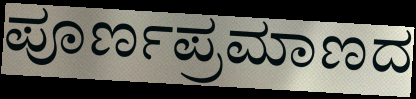
ಪೂರ್ಣಪ್ರಮಾಣದ